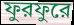
ফুরফুরে